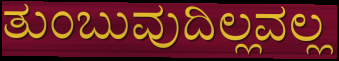
ತುಂಬುವುದಿಲ್ಲವಲ್ಲ